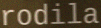
rodila